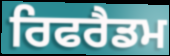
ਰਿਫਰੈਡਮ